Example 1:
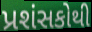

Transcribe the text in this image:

પ્રશંસકોથી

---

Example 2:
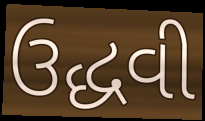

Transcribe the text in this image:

ઉદ્ધવી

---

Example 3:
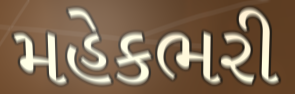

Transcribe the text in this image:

મહેકભરી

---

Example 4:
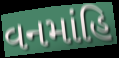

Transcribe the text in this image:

વનમાંહિ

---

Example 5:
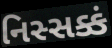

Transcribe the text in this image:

નિસ્સક્કં